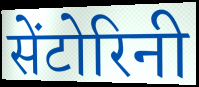
सेंटोरिनी